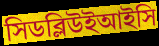
সিডব্লিউইআইসি